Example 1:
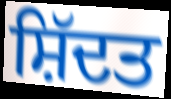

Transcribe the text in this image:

ਸ਼ਿੱਦਤ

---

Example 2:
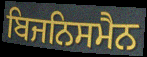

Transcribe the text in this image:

ਬਿਜਨਿਸਮੈਨ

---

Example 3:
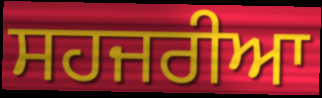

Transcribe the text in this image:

ਸਹਜਰੀਆ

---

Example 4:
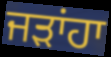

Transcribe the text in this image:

ਜੜਾਂਹਾ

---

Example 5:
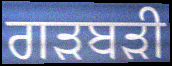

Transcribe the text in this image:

ਗੜਬੜੀ